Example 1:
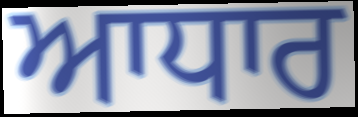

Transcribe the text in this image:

ਆਧਾਰ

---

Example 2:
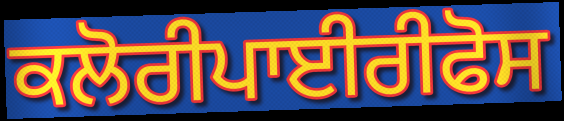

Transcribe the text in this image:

ਕਲੋਰੀਪਾਈਰੀਫੋਸ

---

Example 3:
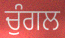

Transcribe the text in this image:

ਚੁੰਗਲ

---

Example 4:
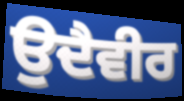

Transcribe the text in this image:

ਉਦੈਵੀਰ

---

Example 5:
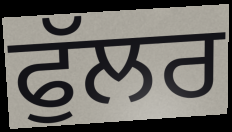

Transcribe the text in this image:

ਫੁੱਲਰ